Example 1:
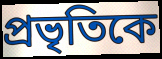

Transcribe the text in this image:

প্রভৃতিকে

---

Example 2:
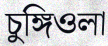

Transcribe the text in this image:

চুঙ্গিওলা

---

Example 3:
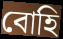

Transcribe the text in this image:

বোহি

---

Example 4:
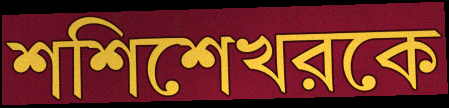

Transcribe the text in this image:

শশিশেখরকে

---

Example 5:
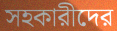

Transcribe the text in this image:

সহকারীদের